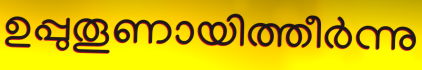
ഉപ്പുതൂണായിത്തീർന്നു